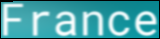
France